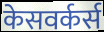
केसवर्कर्स